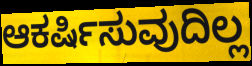
ಆಕರ್ಷಿಸುವುದಿಲ್ಲ